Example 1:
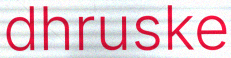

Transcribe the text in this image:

dhruske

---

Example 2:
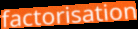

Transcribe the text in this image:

factorisation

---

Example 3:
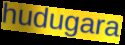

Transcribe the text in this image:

hudugara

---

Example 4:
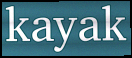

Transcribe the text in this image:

kayak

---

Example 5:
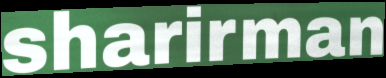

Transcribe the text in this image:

sharirman